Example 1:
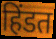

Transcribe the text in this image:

हिंडत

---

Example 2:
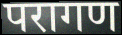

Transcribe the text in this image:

परागण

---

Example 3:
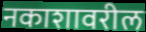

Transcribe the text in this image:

नकाशावरील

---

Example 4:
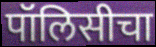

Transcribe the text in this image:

पॉलिसीचा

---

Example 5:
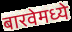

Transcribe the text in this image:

बारवेमध्ये